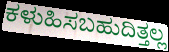
ಕಳುಹಿಸಬಹುದಿತ್ತಲ್ಲ